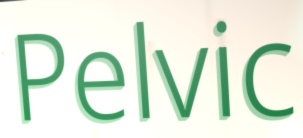
Pelvic